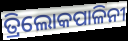
ତ୍ରିଲୋକପାଳିନୀ